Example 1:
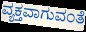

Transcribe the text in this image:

ವ್ಯಕ್ತವಾಗುವಂತೆ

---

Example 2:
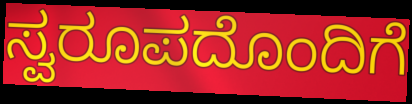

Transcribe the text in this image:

ಸ್ವರೂಪದೊಂದಿಗೆ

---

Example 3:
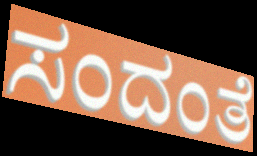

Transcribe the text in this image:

ಸಂದಂತೆ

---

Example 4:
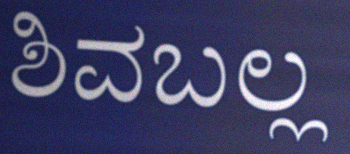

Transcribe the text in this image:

ಶಿವಬಲ್ಲ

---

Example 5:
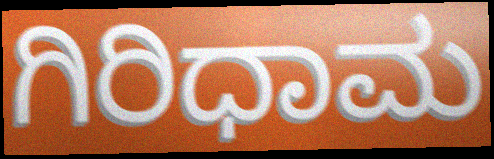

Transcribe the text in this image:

ಗಿರಿಧಾಮ